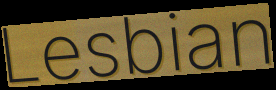
Lesbian